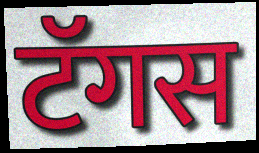
टॅगस